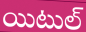
యిటుల్